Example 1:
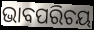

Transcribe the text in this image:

ଭାବପରିଚୟ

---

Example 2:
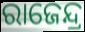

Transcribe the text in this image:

ରାଜେନ୍ଦ୍ର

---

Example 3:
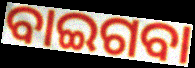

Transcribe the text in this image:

ବାଇଗବା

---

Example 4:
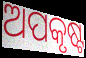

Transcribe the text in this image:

ଅପକୃଷ୍ଟ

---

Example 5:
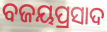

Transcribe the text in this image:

ବଜୟପ୍ରସାଦ